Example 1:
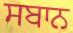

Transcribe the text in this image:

ਸਬਾਨ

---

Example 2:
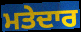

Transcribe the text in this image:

ਮਤੇਦਾਰ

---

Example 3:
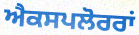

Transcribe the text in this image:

ਐਕਸਪਲੋਰਰਾਂ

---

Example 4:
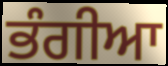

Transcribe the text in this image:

ਭੰਗੀਆ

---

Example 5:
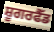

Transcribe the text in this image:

ਸ਼ੂਗਰਫੈੱਡ